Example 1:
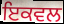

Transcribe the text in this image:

ਇਕਵਲ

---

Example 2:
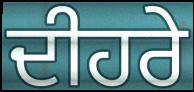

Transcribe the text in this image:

ਦੀਹਰੇ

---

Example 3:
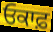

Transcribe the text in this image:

ਓਕਾਫ਼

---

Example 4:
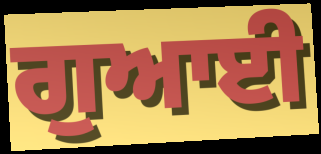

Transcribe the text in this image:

ਗੁਆਈ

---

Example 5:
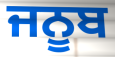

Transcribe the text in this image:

ਜਨੂਬ